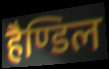
हैण्डिल